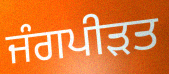
ਜੰਗਪੀੜਤ